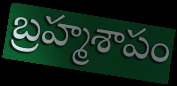
బ్రహ్మశాపం